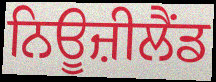
ਨਿਊਜ਼ੀਲੈਂਡ